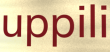
uppili